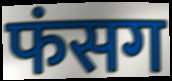
फंसग